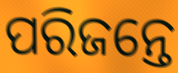
ପରିଜନ୍ତେ